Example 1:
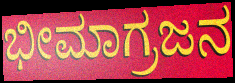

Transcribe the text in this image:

ಭೀಮಾಗ್ರಜನ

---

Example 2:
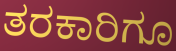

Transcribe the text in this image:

ತರಕಾರಿಗೂ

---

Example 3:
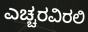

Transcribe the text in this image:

ಎಚ್ಚರವಿರಲಿ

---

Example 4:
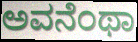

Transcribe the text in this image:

ಅವನೆಂಥಾ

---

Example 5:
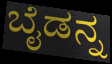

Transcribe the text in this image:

ಬೈಡನ್ನ